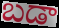
బడా